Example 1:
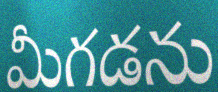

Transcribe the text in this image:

మీగడను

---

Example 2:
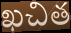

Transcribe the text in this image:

ఖచిత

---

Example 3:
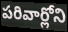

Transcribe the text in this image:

పరివార్లోని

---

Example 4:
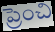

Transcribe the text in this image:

ప్రెంచి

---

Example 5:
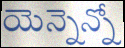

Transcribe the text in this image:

యెన్నెన్నో